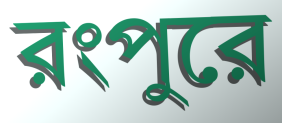
রংপুরে